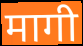
मागी